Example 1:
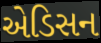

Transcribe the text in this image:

એડિસન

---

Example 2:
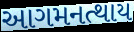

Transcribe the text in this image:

આગમનત્થાય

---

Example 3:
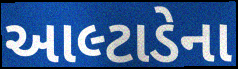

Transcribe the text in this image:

આલ્ટાડેના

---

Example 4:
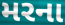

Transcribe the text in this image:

મરના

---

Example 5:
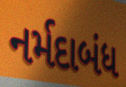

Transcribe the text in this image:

નર્મદાબંધ